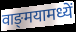
वाङ्‌मयामध्यें